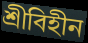
শ্রীবিহীন